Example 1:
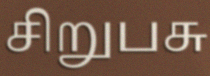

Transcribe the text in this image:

சிறுபசு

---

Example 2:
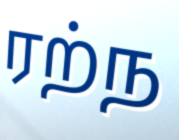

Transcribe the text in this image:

ரற்ந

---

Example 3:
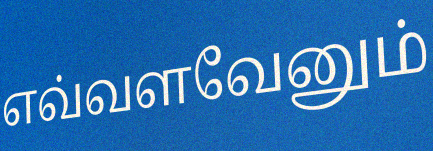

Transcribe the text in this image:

எவ்வளவேனும்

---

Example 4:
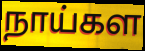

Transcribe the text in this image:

நாய்கள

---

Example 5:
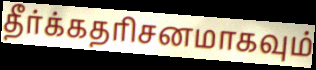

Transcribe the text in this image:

தீர்க்கதரிசனமாகவும்